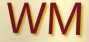
WM